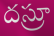
దస్రూ